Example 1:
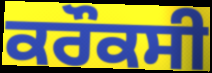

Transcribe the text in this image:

ਕਰੌਕਸੀ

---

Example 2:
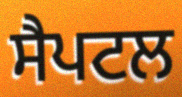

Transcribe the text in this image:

ਸੈਪਟਲ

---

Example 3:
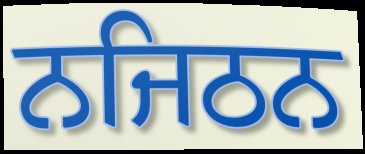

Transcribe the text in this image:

ਨਜਿਠਨ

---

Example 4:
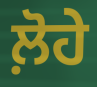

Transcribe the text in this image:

ਲ਼ੋਹੇ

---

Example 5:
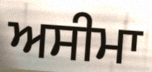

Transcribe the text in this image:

ਅਸੀਮਾ